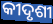
କୀଦୃଶୀ